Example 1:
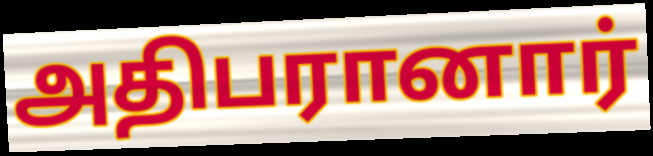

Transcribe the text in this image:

அதிபரானார்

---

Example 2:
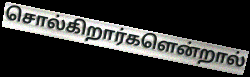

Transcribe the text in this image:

சொல்கிறார்களென்றால்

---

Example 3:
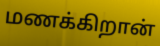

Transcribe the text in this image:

மணக்கிறான்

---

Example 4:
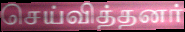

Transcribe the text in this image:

செய்வித்தனர்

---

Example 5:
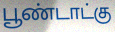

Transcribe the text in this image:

பூண்டாட்கு